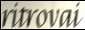
ritrovai